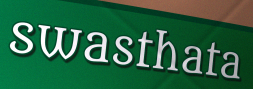
swasthata